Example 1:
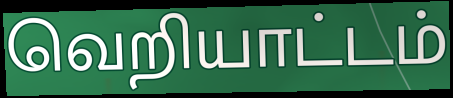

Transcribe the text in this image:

வெறியாட்டம்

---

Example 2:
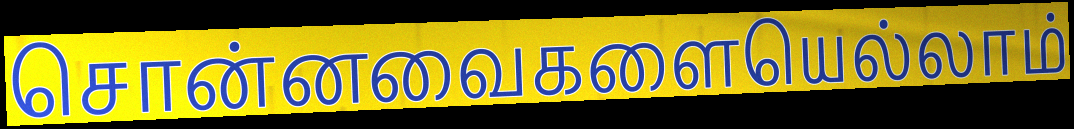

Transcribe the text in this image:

சொன்னவைகளையெல்லாம்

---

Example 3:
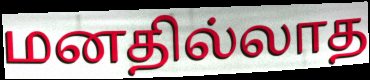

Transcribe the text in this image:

மனதில்லாத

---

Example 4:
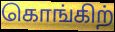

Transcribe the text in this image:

கொங்கிற்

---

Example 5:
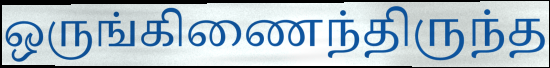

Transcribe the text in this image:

ஒருங்கிணைந்திருந்த